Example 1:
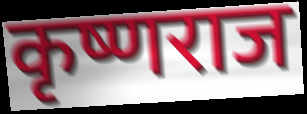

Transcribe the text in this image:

कृष्णराज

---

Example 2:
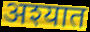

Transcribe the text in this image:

अश्यात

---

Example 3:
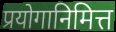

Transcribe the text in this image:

प्रयोगानिमित्त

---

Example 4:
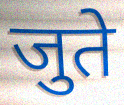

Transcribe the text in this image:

जुते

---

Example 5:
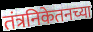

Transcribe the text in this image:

तंत्रनिकेतनच्या